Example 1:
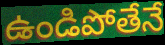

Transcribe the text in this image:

ఉండిపోతేనే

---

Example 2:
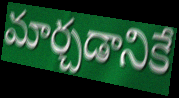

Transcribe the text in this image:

మార్చడానికే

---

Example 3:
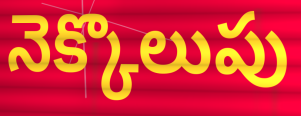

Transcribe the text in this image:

నెక్కొలుపు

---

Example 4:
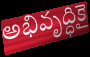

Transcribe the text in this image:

అభివృద్ధికై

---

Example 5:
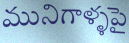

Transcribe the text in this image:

మునిగాళ్ళపై